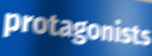
protagonists